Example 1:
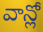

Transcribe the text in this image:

వాన్లో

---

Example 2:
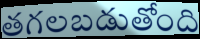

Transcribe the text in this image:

తగలబడుతోంది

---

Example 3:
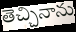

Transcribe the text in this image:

తెచ్చినాను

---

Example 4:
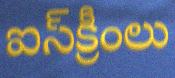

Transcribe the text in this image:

ఐస్‌క్రీంలు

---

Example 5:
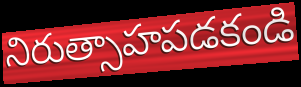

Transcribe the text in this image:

నిరుత్సాహపడకండి